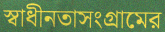
স্বাধীনতাসংগ্রামের